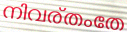
നിവര്തംതേ